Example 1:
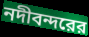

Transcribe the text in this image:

নদীবন্দরের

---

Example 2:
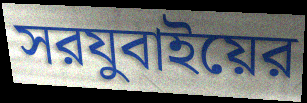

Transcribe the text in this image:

সরযুবাইয়ের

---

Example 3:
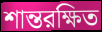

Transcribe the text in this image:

শান্তরক্ষিত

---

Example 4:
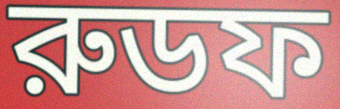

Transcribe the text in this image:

রুডফ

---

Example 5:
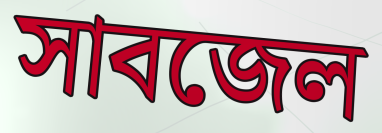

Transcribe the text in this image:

সাবজেল